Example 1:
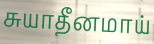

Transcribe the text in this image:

சுயாதீனமாய்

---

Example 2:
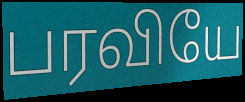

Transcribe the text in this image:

பரவியே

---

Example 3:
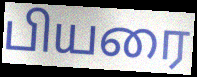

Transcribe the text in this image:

பியரை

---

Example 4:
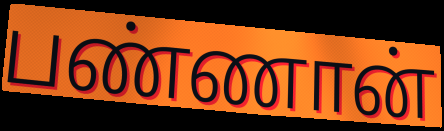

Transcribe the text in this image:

பண்ணான்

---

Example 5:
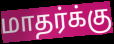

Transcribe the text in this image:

மாதர்க்கு